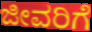
ಜೀವರಿಗೆ